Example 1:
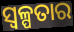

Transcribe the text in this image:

ସ୍ଵଳ୍ପତାର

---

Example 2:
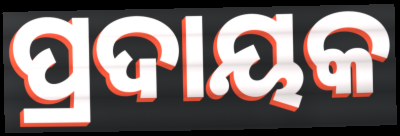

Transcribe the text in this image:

ପ୍ରଦାୟକ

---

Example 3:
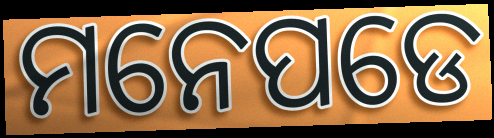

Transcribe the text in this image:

ମନେପଡେ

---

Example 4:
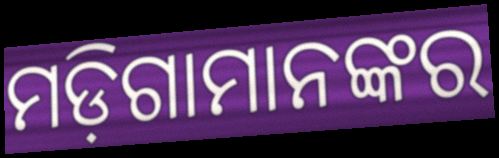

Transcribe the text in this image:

ମଡ଼ିଗାମାନଙ୍କର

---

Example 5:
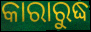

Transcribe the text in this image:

କାରାରୁଦ୍ଧ